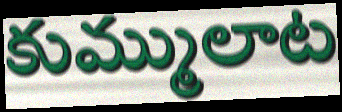
కుమ్ములాట